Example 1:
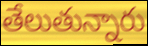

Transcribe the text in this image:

తేలుతున్నారు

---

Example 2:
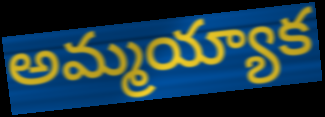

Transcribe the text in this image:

అమ్మయ్యాక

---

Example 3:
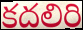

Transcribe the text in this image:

కదలిరి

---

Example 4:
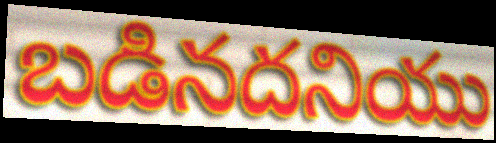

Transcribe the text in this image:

బడినదనియు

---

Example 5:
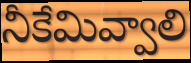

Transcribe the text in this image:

నీకేమివ్వాలి